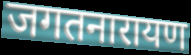
जगतनारायण